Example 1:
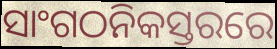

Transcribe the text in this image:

ସାଂଗଠନିକସ୍ତରରେ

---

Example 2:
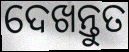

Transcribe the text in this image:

ଦେଖନ୍ତୁତ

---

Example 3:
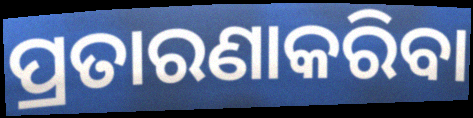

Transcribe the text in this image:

ପ୍ରତାରଣାକରିବା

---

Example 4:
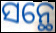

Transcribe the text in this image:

ସନ୍ଥେ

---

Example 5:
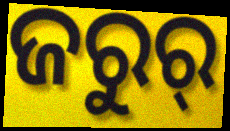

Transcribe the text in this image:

ଜରୁର୍